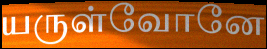
யருள்வோனே